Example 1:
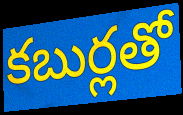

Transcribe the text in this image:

కబుర్లతో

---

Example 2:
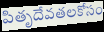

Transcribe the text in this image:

పితృదేవతలకోసం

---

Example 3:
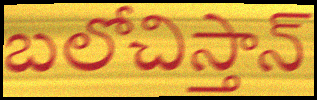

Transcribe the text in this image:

బలోచిస్తాన్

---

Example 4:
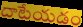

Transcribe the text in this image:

దాటేయడం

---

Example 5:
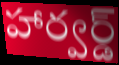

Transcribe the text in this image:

హార్వర్డ్